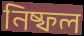
নিষ্ফল